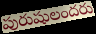
పురుషులందరు